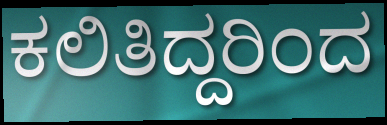
ಕಲಿತಿದ್ದರಿಂದ